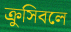
ক্রুসিবলে